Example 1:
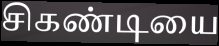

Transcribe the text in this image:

சிகண்டியை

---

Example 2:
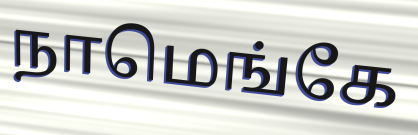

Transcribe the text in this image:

நாமெங்கே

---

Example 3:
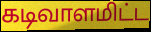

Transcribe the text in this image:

கடிவாளமிட்ட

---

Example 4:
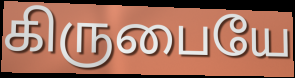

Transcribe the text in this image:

கிருபையே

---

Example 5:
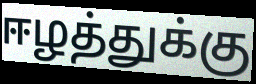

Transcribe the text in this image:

ஈழத்துக்கு